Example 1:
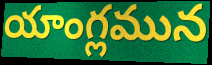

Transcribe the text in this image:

యాంగ్లమున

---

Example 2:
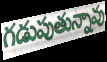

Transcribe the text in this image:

గడుపుతున్నావు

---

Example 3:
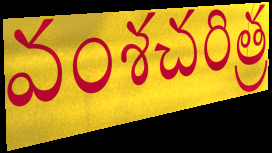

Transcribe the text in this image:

వంశచరిత్ర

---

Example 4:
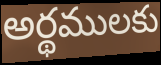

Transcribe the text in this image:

అర్థములకు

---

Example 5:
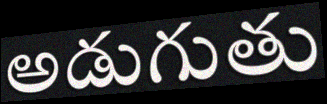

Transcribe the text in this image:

అడుగుతు